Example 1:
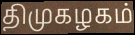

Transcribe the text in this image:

திமுகழகம்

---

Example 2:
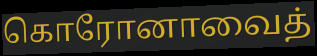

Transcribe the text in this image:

கொரோனாவைத்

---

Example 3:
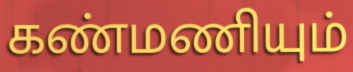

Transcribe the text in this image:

கண்மணியும்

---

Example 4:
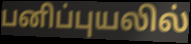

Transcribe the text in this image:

பனிப்புயலில்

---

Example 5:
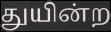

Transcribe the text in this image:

துயின்ற